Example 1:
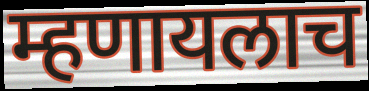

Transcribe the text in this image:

म्हणायलाच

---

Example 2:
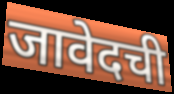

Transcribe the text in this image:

जावेदची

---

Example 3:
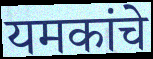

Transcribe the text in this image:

यमकांचे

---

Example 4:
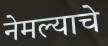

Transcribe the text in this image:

नेमल्याचे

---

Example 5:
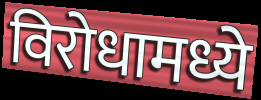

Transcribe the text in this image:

विरोधामध्ये